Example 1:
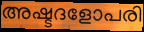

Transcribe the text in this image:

അഷ്ടദളോപരി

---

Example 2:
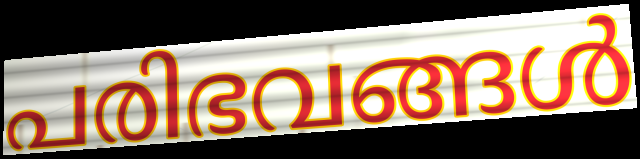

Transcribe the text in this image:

പരിഭവങ്ങൾ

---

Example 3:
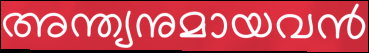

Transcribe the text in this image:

അന്ത്യനുമായവൻ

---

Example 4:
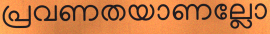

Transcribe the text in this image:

പ്രവണതയാണല്ലോ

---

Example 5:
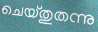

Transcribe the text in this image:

ചെയ്തുതന്നു